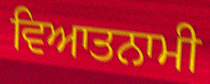
ਵਿਆਤਨਾਮੀ